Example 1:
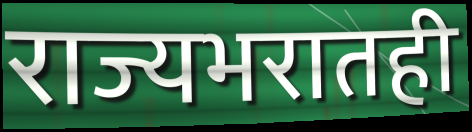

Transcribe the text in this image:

राज्यभरातही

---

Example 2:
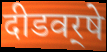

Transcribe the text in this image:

दीडवर्षे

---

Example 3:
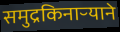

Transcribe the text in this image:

समुद्रकिनाऱ्याने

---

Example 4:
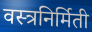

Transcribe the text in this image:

वस्त्रनिर्मिती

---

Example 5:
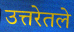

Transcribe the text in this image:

उत्तरेतले